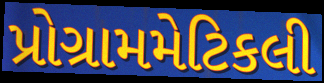
પ્રોગ્રામમેટિકલી